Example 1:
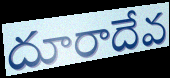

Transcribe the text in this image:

దూరాదేవ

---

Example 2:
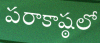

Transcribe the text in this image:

పరాకాష్ఠలో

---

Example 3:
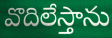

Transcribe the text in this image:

వొదిలేస్తాను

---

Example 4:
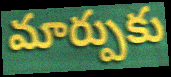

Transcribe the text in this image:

మార్పుకు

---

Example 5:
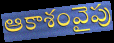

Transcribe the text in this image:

ఆకాశంవైపు